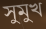
সুমুখ